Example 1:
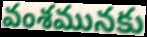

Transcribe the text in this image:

వంశమునకు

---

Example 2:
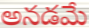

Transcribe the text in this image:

అనడమే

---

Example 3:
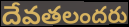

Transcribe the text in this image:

దేవతలందరు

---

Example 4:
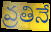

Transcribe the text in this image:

వ్రతినే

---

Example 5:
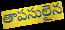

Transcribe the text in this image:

తాపసులైన